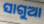
ସାଗୁଆ